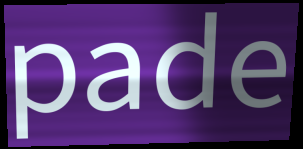
pade